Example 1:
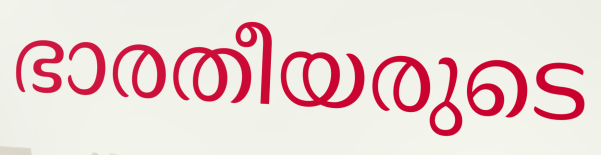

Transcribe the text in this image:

ഭാരതീയരുടെ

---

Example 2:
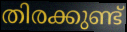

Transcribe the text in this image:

തിരക്കുണ്ട്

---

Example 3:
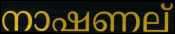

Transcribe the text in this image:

നാഷണല്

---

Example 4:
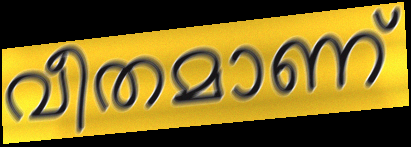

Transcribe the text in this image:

വീതമാണ്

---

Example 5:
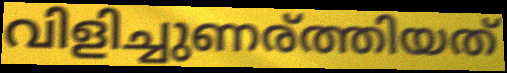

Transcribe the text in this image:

വിളിച്ചുണര്ത്തിയത്